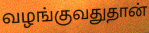
வழங்குவதுதான்